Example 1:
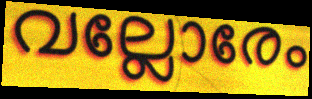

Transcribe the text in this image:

വല്ലോരേം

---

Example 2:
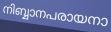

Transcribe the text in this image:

നിബ്ബാനപരായനാ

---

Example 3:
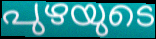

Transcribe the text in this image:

പുഴയുടെ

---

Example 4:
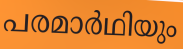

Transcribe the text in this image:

പരമാർഥിയും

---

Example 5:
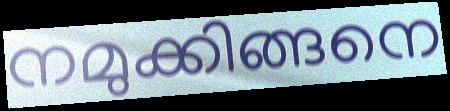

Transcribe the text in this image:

നമുക്കിങ്ങനെ